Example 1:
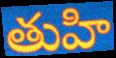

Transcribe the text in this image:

తుహి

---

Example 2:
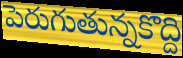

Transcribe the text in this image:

పెరుగుతున్నకొద్ది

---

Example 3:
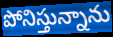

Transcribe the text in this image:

పోనిస్తున్నాను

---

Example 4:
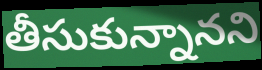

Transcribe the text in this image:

తీసుకున్నానని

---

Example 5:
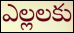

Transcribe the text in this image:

ఎల్లలకు